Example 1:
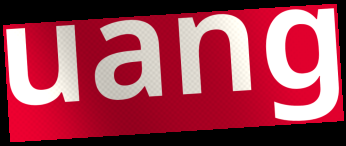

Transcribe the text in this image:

uang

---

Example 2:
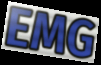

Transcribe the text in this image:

EMG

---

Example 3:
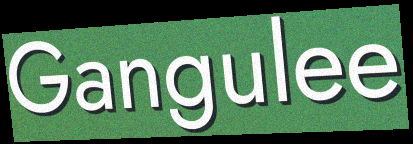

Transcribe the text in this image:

Gangulee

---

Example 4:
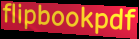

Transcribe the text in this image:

flipbookpdf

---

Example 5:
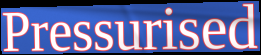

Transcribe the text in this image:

Pressurised